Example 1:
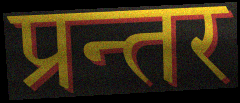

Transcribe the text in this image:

प्रन्तर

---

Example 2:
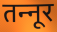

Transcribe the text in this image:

तन्नूर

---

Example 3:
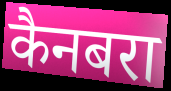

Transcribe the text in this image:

कैनबरा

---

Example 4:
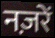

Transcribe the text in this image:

नज़रें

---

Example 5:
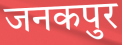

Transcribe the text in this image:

जनकपुर